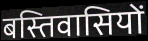
बस्तिवासियों